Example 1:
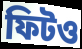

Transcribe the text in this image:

ফিটও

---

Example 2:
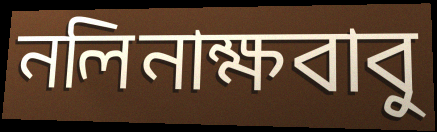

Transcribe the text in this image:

নলিনাক্ষবাবু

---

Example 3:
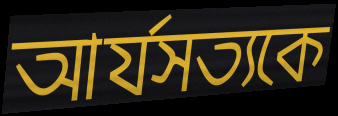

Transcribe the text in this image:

আর্যসত্যকে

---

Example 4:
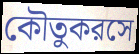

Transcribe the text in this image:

কৌতুকরসে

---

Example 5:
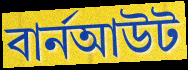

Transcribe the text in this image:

বার্নআউট